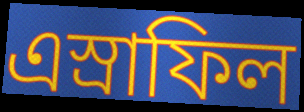
এস্রাফিল